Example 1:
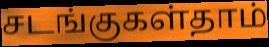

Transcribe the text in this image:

சடங்குகள்தாம்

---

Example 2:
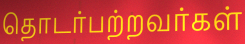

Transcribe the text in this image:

தொடர்பற்றவர்கள்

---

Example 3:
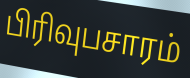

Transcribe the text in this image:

பிரிவுபசாரம்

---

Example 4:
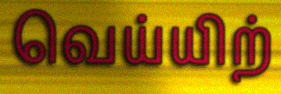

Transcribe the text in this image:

வெய்யிற்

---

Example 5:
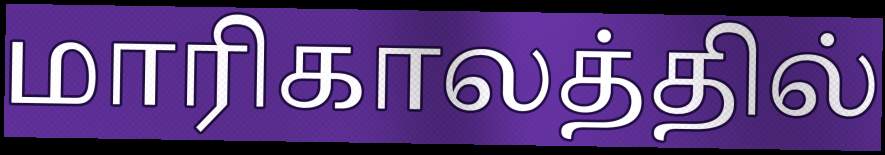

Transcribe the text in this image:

மாரிகாலத்தில்